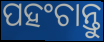
ପହଂଚାନ୍ତୁ